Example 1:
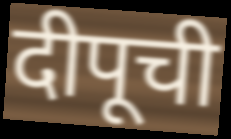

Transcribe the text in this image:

दीपूची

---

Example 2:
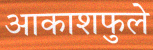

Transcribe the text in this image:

आकाशफुले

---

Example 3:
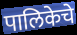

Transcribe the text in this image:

पालिकेचे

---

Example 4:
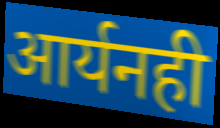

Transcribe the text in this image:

आर्यनही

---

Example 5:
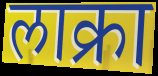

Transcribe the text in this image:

लाक्रा